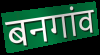
बनगांव